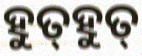
ହୁତ୍‍ହୁତ୍